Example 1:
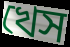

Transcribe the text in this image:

খেস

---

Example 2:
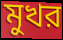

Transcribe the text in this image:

মুখর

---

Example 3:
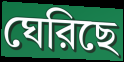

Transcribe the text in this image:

ঘেরিছে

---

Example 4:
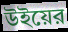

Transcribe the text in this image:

উইয়ের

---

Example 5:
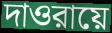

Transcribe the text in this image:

দাওরায়ে